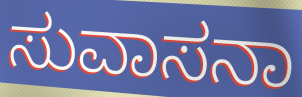
ಸುವಾಸನಾ